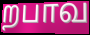
றபாவ